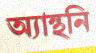
অ্যান্থনি